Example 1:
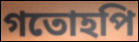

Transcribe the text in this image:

গতোহপি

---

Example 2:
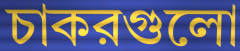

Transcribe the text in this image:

চাকরগুলো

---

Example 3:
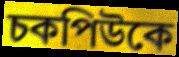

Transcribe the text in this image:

চকপিউকে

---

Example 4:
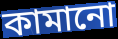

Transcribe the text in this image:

কামানো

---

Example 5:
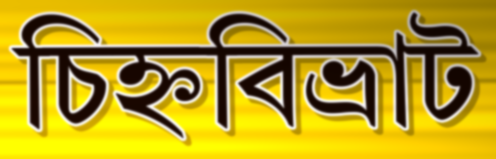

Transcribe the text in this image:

চিহ্নবিভ্রাট